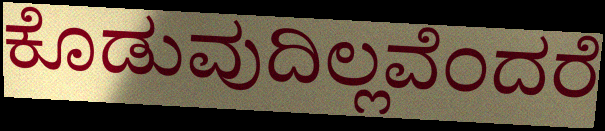
ಕೊಡುವುದಿಲ್ಲವೆಂದರೆ